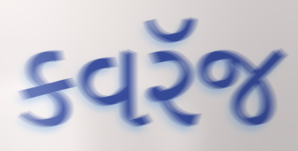
કવરૅજ